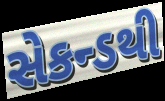
સેકન્ડથી